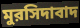
মুরসিদাবাদ